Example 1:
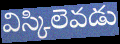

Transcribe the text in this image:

విస్కిలెవడు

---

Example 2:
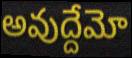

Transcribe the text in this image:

అవుద్దేమో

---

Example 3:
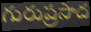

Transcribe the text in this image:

గురుప్రసాద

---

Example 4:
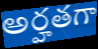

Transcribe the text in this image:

అర్హతగా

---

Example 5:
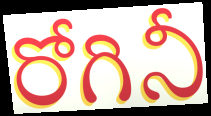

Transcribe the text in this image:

రోగినీ